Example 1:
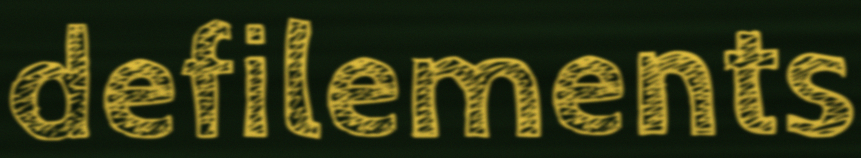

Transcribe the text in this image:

defilements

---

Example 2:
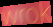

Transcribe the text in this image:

wrok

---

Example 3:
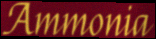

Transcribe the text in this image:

Ammonia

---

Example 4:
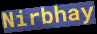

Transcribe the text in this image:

Nirbhay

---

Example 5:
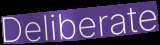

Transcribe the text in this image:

Deliberate